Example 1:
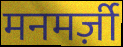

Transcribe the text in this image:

मनमर्ज़ी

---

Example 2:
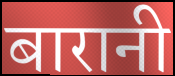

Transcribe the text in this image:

बारानी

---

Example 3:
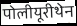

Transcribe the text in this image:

पोलीयूरीथेन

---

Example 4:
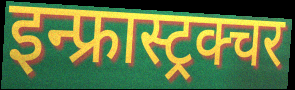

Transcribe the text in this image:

इन्फ्रास्ट्रक्चर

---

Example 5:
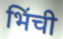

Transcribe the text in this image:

भिंची